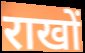
राखों